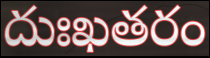
దుఃఖతరం